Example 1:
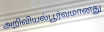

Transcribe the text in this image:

அறிவியல்பூர்வமானது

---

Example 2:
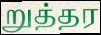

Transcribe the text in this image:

றுத்தர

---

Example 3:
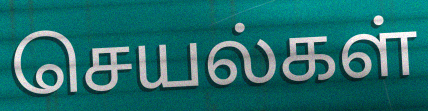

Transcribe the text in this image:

செயல்கள்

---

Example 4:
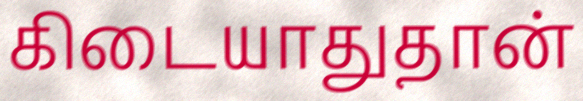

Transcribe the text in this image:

கிடையாதுதான்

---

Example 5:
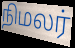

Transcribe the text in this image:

நிமலர்